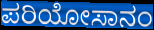
ಪರಿಯೋಸಾನಂ